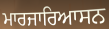
ਮਾਰਜਾਰਿਆਸਨ